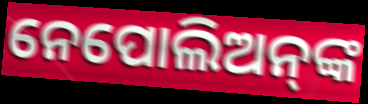
ନେପୋଲିଅନ୍‌ଙ୍କ